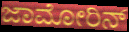
ಜಾಮೋರಿನ್